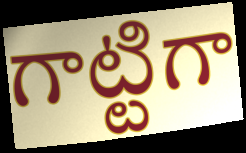
గాట్టిగా